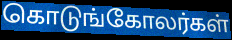
கொடுங்கோலர்கள்